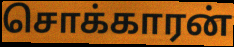
சொக்காரன்